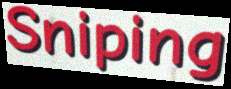
Sniping